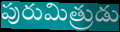
పురుమిత్రుడు